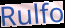
Rulfo